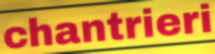
chantrieri